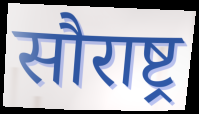
सौराष्ट्र